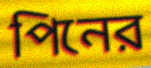
পিনের